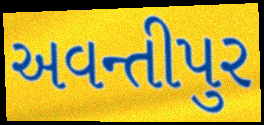
અવન્તીપુર